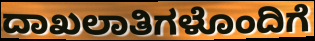
ದಾಖಲಾತಿಗಳೊಂದಿಗೆ